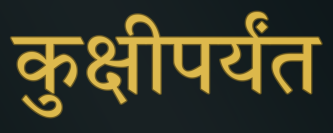
कुक्षीपर्यंत